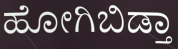
ಹೋಗಿಬಿಡ್ತಾ